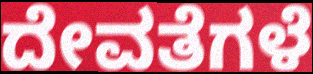
ದೇವತೆಗಳೆ